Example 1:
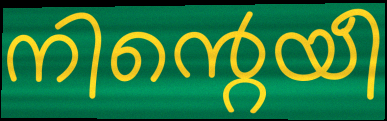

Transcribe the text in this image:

നിന്റെയീ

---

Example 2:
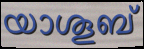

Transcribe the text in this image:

യാശൂബ്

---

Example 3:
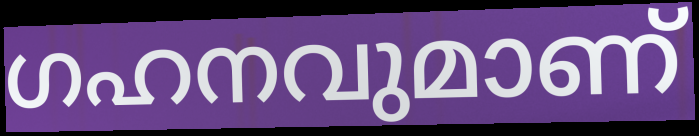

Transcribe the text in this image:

ഗഹനവുമാണ്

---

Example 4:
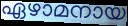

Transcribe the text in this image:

ഏഴാമനായ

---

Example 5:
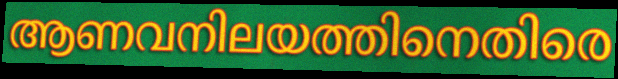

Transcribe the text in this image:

ആണവനിലയത്തിനെതിരെ